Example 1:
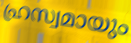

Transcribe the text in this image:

ഹ്രസ്വമായും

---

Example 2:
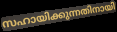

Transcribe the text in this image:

സഹായിക്കുന്നതിനായി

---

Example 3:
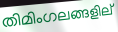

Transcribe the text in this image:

തിമിംഗലങ്ങളില്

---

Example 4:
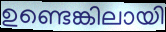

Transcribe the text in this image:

ഉണ്ടെങ്കിലായി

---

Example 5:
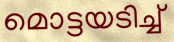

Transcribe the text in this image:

മൊട്ടയടിച്ച്